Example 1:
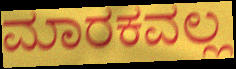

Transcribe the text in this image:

ಮಾರಕವಲ್ಲ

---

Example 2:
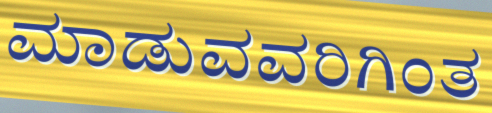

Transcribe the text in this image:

ಮಾಡುವವರಿಗಿಂತ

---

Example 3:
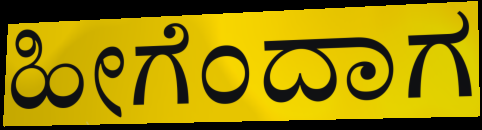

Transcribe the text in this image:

ಹೀಗೆಂದಾಗ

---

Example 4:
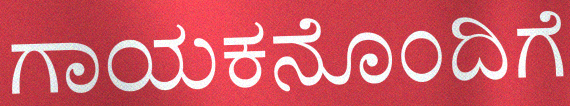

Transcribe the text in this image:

ಗಾಯಕನೊಂದಿಗೆ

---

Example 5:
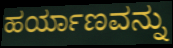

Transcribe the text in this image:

ಹರ್ಯಾಣವನ್ನು